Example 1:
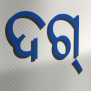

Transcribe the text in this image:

ଦଗ୍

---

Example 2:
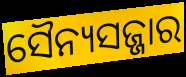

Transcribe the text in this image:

ସୈନ୍ୟସଜ୍ଜାର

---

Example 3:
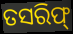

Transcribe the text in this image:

ତସରିଫ୍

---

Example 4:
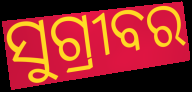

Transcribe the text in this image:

ସୁଗ୍ରୀବର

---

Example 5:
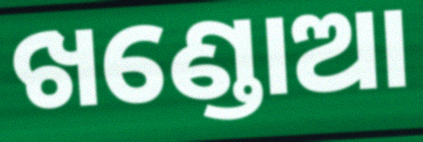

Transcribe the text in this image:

ଖଣ୍ଡୋଆ